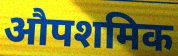
औपशमिक